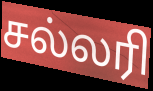
சல்லரி